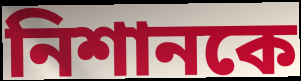
নিশানকে